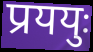
प्रययुः